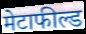
मेटाफील्ड